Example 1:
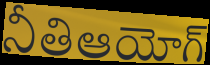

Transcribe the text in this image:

నీతిఆయోగ్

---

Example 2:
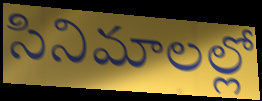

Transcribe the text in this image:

సినిమాలల్లో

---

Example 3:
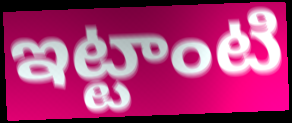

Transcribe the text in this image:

ఇట్టాంటి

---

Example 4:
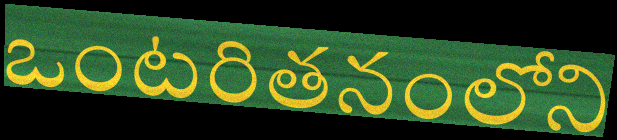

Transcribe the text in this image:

ఒంటరితనంలోని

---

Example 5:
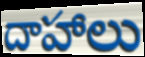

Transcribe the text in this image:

దాహాలు